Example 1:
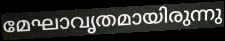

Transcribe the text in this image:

മേഘാവൃതമായിരുന്നു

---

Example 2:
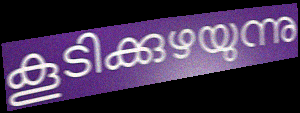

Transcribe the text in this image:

കൂടിക്കുഴയുന്നു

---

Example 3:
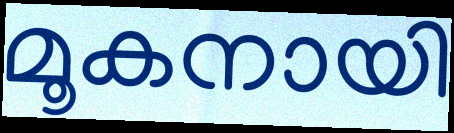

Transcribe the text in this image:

മൂകനായി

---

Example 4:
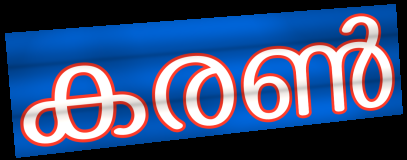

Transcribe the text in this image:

കരൺ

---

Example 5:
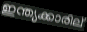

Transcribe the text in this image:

ഇന്ത്യക്കാരില്